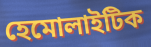
হেমোলাইটিক